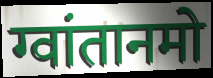
ग्वांतानमो